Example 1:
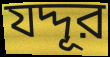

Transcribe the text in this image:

যদ্দূর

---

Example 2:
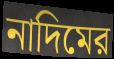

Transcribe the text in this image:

নাদিমের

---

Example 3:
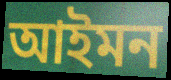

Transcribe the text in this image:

আইমন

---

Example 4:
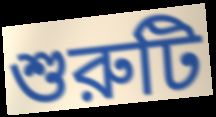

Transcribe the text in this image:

শুরুটি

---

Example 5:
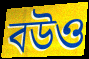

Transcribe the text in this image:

বউও